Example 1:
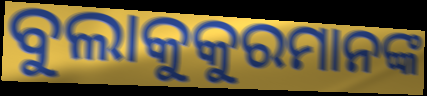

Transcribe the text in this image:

ବୁଲାକୁକୁରମାନଙ୍କ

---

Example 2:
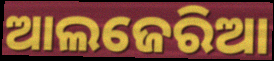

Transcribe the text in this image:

ଆଲଜେରିଆ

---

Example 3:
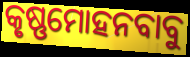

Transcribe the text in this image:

କୃଷ୍ଣମୋହନବାବୁ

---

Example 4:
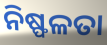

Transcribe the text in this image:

ନିଷ୍ଫଳତା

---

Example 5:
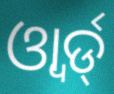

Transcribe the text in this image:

ଓ୍ୱାର୍ଡ୍